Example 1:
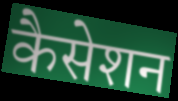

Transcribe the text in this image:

कैसेशन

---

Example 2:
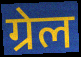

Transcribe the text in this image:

ग्रेल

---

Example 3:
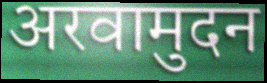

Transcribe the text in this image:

अरवामुदन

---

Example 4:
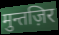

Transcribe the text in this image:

मुन्तज़िर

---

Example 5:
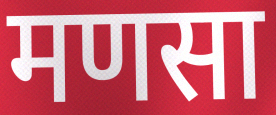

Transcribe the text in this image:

मणसा